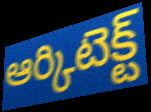
ఆర్కిటెక్ట్